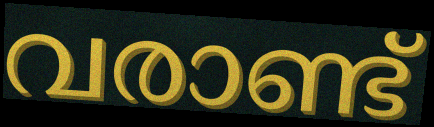
വരാണ്ട്